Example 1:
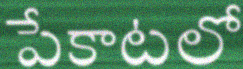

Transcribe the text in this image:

పేకాటలో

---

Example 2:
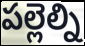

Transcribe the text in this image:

పల్లెల్ని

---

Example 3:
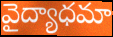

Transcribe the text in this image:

వైద్యాధమా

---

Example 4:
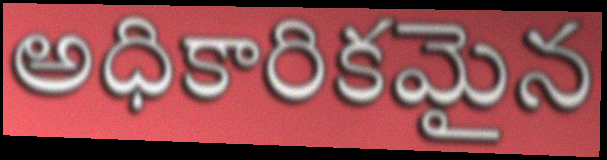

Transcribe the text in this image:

అధికారికమైన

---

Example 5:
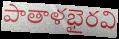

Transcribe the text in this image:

పాతాళభైరవి